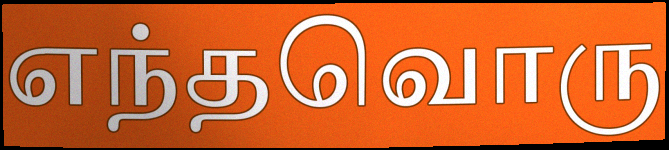
எந்தவொரு